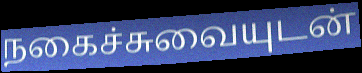
நகைச்சுவையுடன்